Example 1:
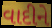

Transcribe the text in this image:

વાદીને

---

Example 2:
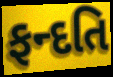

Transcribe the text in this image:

ફન્દતિ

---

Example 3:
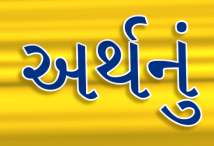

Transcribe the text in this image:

અર્થનું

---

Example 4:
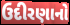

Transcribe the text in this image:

ઉદીરણાનો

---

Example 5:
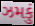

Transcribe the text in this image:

ઝમકું